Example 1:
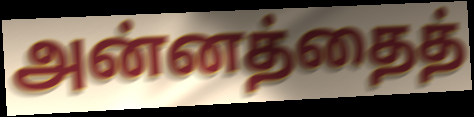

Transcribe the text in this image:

அன்னத்தைத்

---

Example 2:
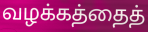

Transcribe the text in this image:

வழக்கத்தைத்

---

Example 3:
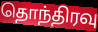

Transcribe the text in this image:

தொந்திரவு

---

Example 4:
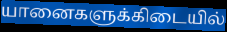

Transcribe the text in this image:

யானைகளுக்கிடையில்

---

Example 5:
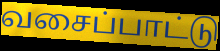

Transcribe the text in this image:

வசைப்பாட்டு